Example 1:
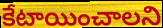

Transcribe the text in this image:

కేటాయించాలని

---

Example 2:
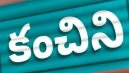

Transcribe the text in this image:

కంచిని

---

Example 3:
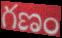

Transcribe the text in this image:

గణం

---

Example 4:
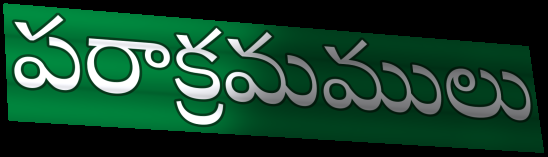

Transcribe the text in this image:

పరాక్రమములు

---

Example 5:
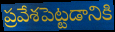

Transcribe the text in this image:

ప్రవేశపెట్టడానికి